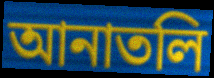
আনাতলি